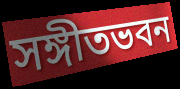
সঙ্গীতভবন